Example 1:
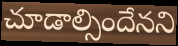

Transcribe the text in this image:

చూడాల్సిందేనని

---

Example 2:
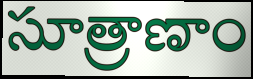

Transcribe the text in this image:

సూత్రాణాం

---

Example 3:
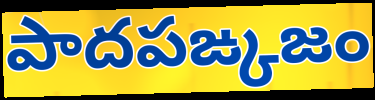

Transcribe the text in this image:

పాదపఙ్కజం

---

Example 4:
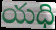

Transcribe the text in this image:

యధి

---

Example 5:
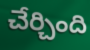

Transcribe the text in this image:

చేర్చింది